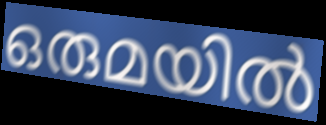
ഒരുമയിൽ